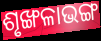
ଶୃଙ୍ଖଳାଭଙ୍ଗ